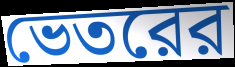
ভেতরের